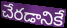
చేరడానికే